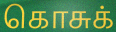
கொசுக்